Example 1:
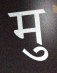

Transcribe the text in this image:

मु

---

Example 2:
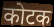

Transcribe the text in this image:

कोटक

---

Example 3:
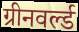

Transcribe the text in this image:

ग्रीनवर्ल्ड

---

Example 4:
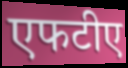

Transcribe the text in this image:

एफटीए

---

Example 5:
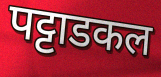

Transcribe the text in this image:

पट्टाडकल